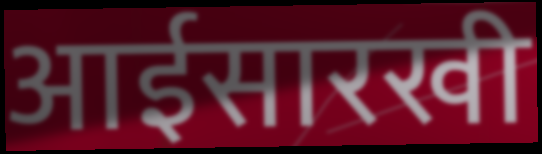
आईसारखी